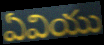
ఏవియు